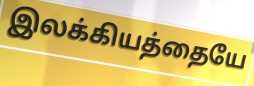
இலக்கியத்தையே